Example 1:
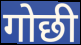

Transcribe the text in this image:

गोछी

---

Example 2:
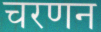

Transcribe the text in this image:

चरणन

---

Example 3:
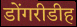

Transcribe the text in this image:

डोंगरीडीह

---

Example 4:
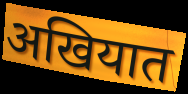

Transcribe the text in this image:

अखियात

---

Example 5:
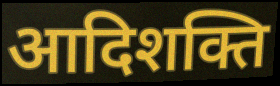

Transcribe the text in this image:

आदिशक्ति